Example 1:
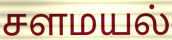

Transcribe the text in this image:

சளமயல்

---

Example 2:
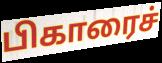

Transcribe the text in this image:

பிகாரைச்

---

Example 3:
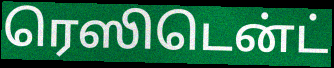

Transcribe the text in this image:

ரெஸிடென்ட்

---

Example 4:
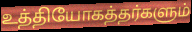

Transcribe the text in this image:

உத்தியோகத்தர்களும்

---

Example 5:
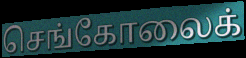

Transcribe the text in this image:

செங்கோலைக்